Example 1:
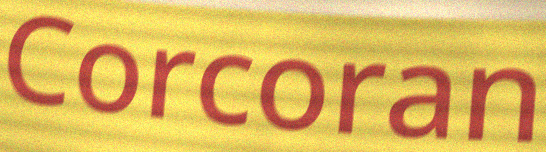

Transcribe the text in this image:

Corcoran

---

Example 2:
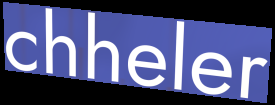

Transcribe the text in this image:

chheler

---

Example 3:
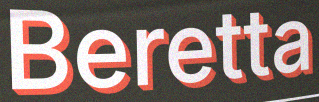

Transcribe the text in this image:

Beretta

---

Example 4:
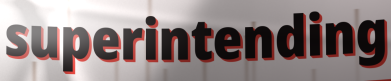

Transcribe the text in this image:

superintending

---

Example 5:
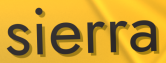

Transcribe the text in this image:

sierra